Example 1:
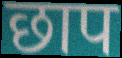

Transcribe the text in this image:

छाप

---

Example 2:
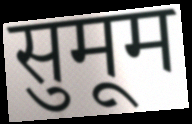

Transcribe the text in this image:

सुमूम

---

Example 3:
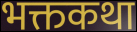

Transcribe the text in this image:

भक्तकथा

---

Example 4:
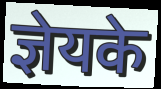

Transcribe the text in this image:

ज्ञेयके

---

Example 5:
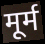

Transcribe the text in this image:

मूर्म